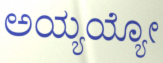
ಅಯ್ಯಯ್ಯೋ